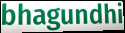
bhagundhi